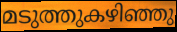
മടുത്തുകഴിഞ്ഞു